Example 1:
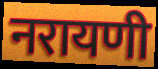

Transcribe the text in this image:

नरायणी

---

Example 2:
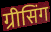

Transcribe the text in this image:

ग्रीसिंग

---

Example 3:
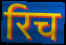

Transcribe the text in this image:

रिच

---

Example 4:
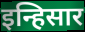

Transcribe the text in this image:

इन्हिसार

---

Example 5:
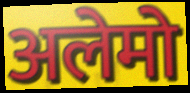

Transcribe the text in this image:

अलेमो